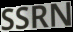
SSRN